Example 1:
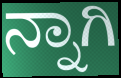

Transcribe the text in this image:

ನ್ನಾಗಿ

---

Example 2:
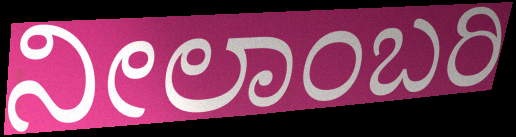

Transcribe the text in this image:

ನೀಲಾಂಬರಿ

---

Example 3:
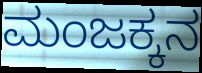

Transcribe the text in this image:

ಮಂಜಕ್ಕನ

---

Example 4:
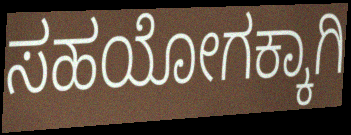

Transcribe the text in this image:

ಸಹಯೋಗಕ್ಕಾಗಿ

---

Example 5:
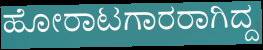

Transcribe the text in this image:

ಹೋರಾಟಗಾರರಾಗಿದ್ದ